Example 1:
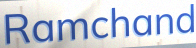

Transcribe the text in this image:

Ramchand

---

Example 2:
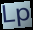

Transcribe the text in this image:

Lp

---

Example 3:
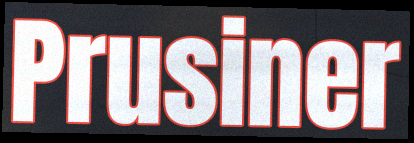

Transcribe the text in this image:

Prusiner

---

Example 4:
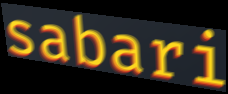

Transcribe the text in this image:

sabari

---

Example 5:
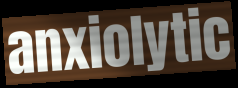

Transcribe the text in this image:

anxiolytic